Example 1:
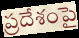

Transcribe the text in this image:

ప్రదేశంపై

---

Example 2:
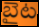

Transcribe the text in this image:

బైట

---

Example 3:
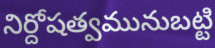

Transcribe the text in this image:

నిర్దోషత్వమునుబట్టి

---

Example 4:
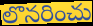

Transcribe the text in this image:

లొనరించు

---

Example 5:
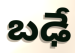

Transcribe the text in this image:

బఢే